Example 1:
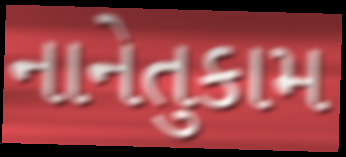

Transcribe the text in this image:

નાનેતુકામ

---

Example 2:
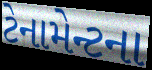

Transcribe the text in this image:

ટેનામેન્ટના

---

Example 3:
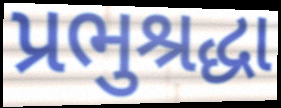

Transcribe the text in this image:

પ્રભુશ્રદ્ધા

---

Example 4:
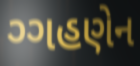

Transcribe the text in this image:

ગ્ગહણેન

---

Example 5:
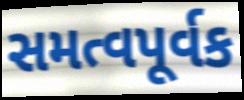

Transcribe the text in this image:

સમત્વપૂર્વક